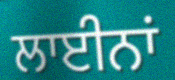
ਲਾਈਨਾਂ